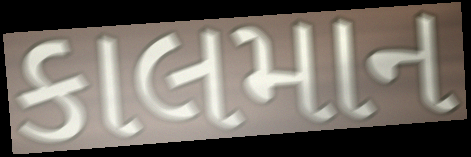
કાલમાન